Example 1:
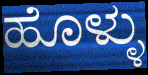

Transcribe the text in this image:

ಹೊಳ್ಳು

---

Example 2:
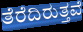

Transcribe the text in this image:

ತೆರೆದಿರುತ್ತವೆ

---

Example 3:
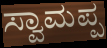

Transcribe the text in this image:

ಸ್ವಾಮಪ್ಪ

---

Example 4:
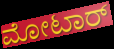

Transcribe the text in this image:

ಮೋಟಾರ್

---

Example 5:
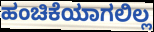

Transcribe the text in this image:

ಹಂಚಿಕೆಯಾಗಲಿಲ್ಲ